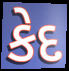
કેદ